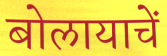
बोलायाचें